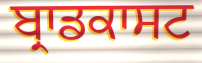
ਬ੍ਰਾਡਕਾਸਟ